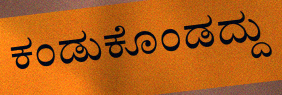
ಕಂಡುಕೊಂಡದ್ದು